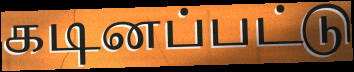
கடினப்பட்டு